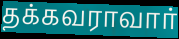
தக்கவராவார்